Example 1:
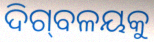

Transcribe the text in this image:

ଦିଗ୍‌ବଳୟକୁ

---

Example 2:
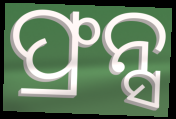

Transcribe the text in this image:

ଫ୍ରନ୍ସ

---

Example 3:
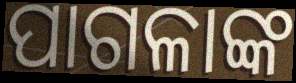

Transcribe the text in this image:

ପାଗଳାଙ୍କ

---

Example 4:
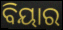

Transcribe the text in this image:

ବିୟାର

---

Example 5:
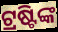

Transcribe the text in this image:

ଟ୍ରଷ୍ଟିଙ୍କ